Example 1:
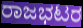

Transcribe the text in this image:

ರಾಜಭಟರ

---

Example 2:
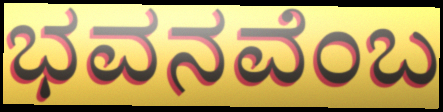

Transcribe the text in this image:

ಭವನವೆಂಬ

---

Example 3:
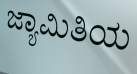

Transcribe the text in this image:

ಜ್ಯಾಮಿತಿಯ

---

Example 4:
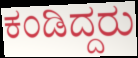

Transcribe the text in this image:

ಕಂಡಿದ್ದರು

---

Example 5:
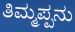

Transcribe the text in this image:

ತಿಮ್ಮಪ್ಪನು